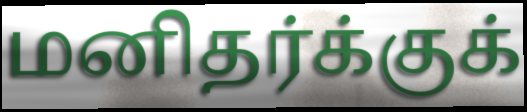
மனிதர்க்குக்